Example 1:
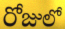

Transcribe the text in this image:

రోజులో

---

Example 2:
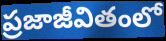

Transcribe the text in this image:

ప్రజాజీవితంలో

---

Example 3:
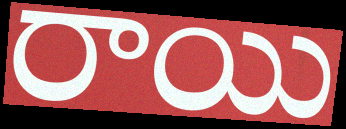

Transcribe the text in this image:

రాయి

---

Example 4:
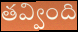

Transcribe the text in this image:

తవ్వింది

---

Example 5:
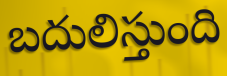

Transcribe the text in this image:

బదులిస్తుంది